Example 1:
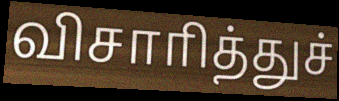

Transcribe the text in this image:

விசாரித்துச்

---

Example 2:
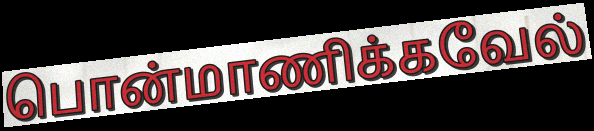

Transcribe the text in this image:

பொன்மாணிக்கவேல்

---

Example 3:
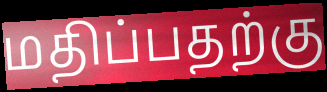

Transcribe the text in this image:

மதிப்பதற்கு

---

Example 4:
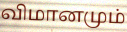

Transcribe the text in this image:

விமானமும்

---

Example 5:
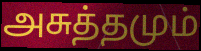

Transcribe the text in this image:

அசுத்தமும்